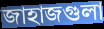
জাহাজগুলা